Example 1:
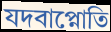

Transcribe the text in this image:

যদবাপ্নোতি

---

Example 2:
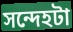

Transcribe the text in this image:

সন্দেহটা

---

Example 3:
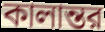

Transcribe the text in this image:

কালান্তর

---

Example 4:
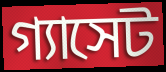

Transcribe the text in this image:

গ্যাসেট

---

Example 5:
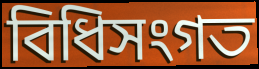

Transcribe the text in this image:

বিধিসংগত